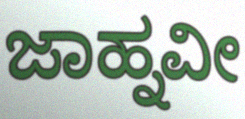
ಜಾಹ್ನವೀ